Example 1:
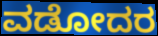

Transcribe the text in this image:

ವಡೋದರ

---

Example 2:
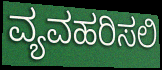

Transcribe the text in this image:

ವ್ಯವಹರಿಸಲಿ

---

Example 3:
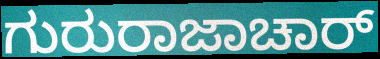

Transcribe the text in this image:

ಗುರುರಾಜಾಚಾರ್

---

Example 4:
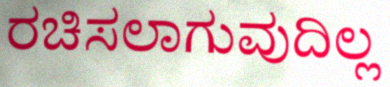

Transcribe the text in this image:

ರಚಿಸಲಾಗುವುದಿಲ್ಲ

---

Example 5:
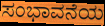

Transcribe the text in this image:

ಸಂಭಾವನೆಯ